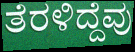
ತೆರಳಿದ್ದೆವು